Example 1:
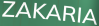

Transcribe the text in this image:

ZAKARIA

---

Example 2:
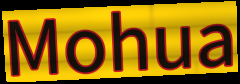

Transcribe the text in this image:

Mohua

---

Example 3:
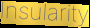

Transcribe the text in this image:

Insularity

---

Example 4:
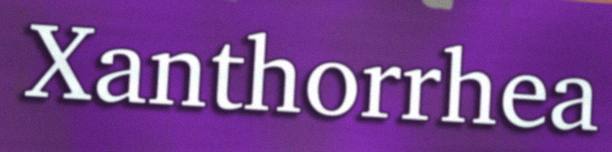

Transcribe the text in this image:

Xanthorrhea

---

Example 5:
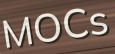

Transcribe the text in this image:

MOCs